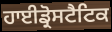
ਹਾਈਡ੍ਰੋਸਟੈਟਿਕ